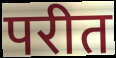
परीत